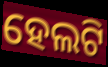
ହେଲଟି